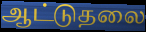
ஆட்டுதலை